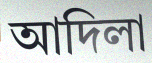
আদিলা